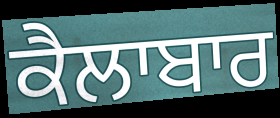
ਕੈਲਾਬਾਰ